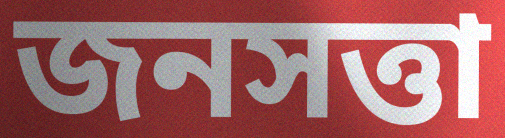
জনসত্তা